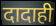
दादाही